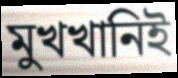
মুখখানিই